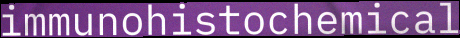
immunohistochemical